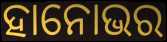
ହାନୋଭର